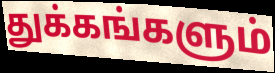
துக்கங்களும்